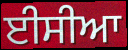
ਈਸੀਆ